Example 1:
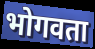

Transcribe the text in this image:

भोगवता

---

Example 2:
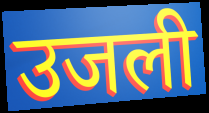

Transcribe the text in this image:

उजली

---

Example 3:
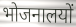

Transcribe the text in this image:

भोजनालयों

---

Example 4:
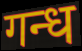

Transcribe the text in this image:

गन्ध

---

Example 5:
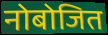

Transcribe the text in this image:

नोबोजित